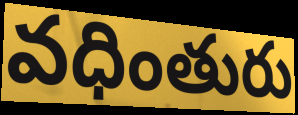
వధింతురు